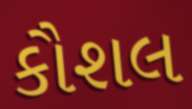
કૌશલ